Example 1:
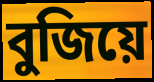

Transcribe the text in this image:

বুজিয়ে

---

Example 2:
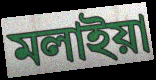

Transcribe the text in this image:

মলাইয়া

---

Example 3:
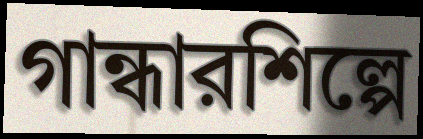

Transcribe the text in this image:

গান্ধারশিল্পে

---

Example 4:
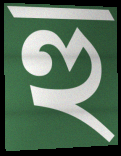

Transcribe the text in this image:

হু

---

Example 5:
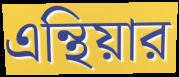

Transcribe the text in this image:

এন্থিয়ার